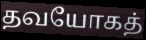
தவயோகத்